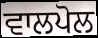
ਵਾਲਪੋਲ